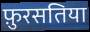
फ़ुरसतिया